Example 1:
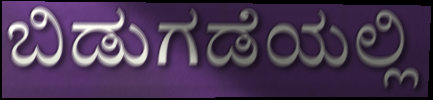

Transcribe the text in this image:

ಬಿಡುಗಡೆಯಲ್ಲಿ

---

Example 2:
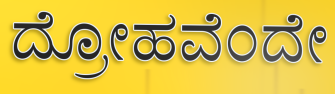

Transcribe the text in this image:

ದ್ರೋಹವೆಂದೇ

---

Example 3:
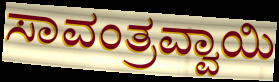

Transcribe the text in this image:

ಸಾವಂತ್ರವ್ವಾಯಿ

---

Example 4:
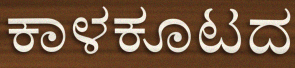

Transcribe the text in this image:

ಕಾಳಕೂಟದ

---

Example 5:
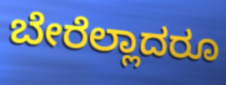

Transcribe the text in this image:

ಬೇರೆಲ್ಲಾದರೂ